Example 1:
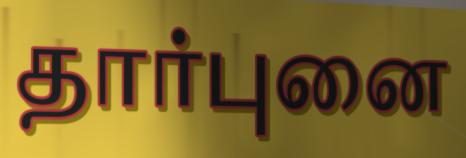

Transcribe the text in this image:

தார்புனை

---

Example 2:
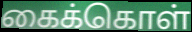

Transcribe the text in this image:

கைக்கொள்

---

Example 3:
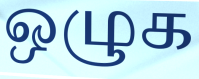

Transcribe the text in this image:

ஒழுக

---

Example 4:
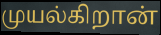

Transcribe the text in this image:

முயல்கிறான்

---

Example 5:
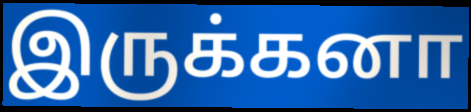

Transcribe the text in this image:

இருக்கனா